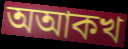
অআকখ